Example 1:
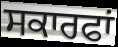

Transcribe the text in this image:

ਸਕਾਰਫਾਂ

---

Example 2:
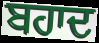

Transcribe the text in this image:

ਬਹਾਦ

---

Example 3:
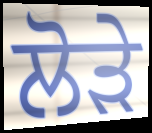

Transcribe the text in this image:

ਲੋੜੇ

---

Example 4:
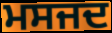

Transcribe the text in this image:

ਮਸਜਦ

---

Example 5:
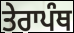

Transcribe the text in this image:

ਤੇਰਾਪੰਥ